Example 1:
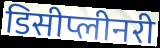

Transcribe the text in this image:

डिसीप्लीनरी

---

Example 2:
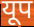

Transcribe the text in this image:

यूप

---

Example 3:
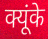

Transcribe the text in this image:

क्यूंके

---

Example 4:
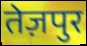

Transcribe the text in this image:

तेज़पुर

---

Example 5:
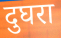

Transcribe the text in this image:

दुघरा